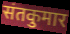
संतकुमार